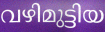
വഴിമുട്ടിയ